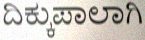
ದಿಕ್ಕುಪಾಲಾಗಿ